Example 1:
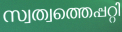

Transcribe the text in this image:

സ്വത്വത്തെപ്പറ്റി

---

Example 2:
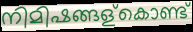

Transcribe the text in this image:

നിമിഷങ്ങള്കൊണ്ട്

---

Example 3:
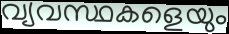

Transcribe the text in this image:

വ്യവസ്ഥകളെയും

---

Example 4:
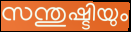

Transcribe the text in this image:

സന്തുഷ്ടിയും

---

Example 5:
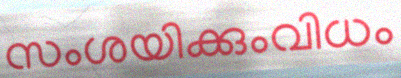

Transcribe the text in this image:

സംശയിക്കുംവിധം